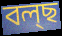
বল্‌ছ